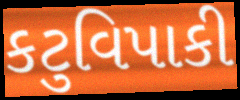
કટુવિપાકી